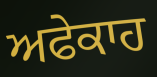
ਅਫੇਕਾਹ